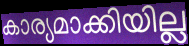
കാര്യമാക്കിയില്ല